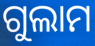
ଗୁଲାମ